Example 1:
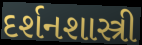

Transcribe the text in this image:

દર્શનશાસ્ત્રી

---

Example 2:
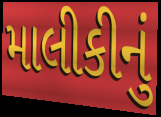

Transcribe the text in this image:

માલીકીનું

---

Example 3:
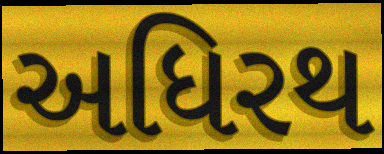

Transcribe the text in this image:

અધિરથ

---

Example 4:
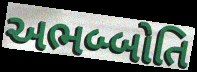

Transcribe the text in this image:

અભબ્બોતિ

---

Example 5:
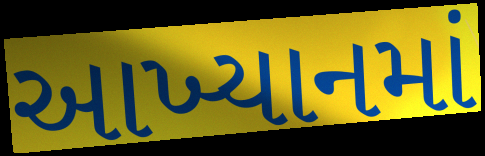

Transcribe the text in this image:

આખ્યાનમાં